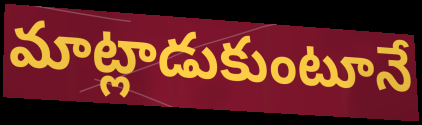
మాట్లాడుకుంటూనే